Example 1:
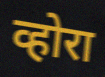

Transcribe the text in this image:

व्होरा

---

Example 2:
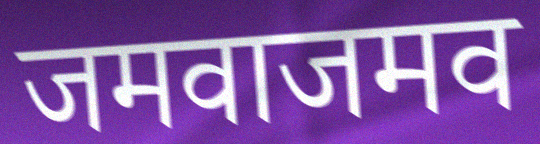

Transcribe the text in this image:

जमवाजमव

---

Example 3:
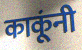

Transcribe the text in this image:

काकूंनी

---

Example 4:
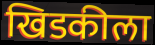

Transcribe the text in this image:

खिडकीला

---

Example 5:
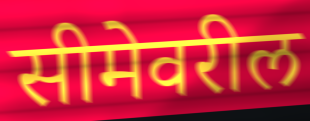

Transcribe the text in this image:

सीमेवरील